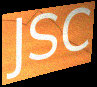
JSC